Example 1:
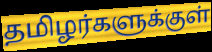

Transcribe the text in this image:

தமிழர்களுக்குள்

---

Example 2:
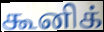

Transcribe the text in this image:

கூனிக்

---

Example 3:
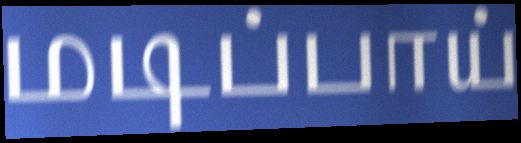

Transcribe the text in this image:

மடிப்பாய்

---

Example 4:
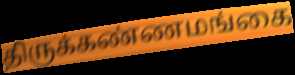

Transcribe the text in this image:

திருக்கண்ணமங்கை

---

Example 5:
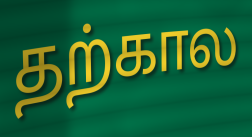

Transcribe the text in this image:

தற்கால